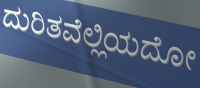
ದುರಿತವೆಲ್ಲಿಯದೋ